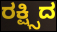
ರಕ್ಷ್ಸಿದ